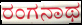
ರಂಗನಾಥ